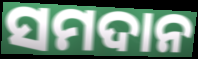
ସମଦାନ